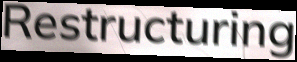
Restructuring